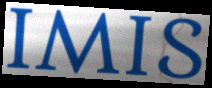
IMIS